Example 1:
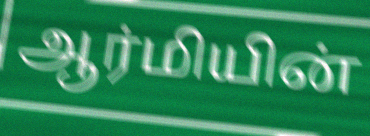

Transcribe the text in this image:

ஆர்மியின்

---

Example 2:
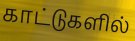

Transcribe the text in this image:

காட்டுகளில்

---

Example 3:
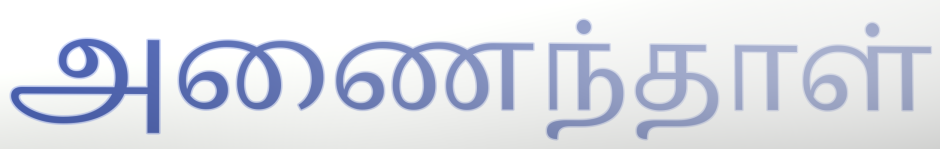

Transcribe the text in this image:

அணைந்தாள்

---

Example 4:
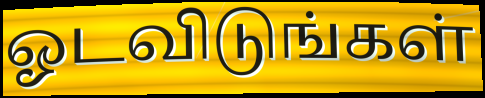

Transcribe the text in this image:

ஓடவிடுங்கள்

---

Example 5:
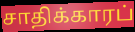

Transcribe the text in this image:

சாதிக்காரப்